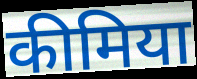
कीमिया